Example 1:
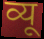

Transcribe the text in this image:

व्यू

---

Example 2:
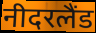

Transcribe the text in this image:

नीदरलैंड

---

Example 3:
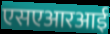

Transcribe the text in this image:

एसएआरआई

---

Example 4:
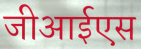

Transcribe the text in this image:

जीआईएस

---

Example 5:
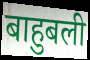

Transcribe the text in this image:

बाहुबली